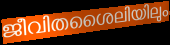
ജീവിതശൈലിയിലും